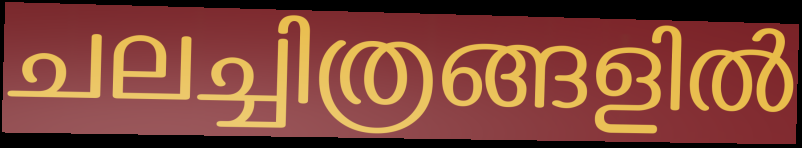
ചലച്ചിത്രങ്ങളിൽ